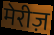
मेरीज़